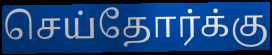
செய்தோர்க்கு